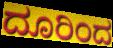
ದೂರಿಂದ